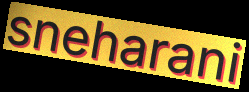
sneharani